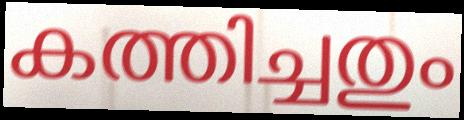
കത്തിച്ചതും